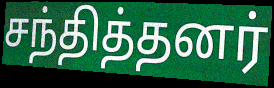
சந்தித்தனர்